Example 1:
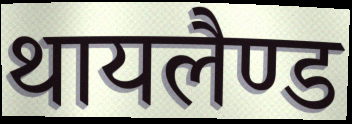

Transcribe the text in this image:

थायलैण्ड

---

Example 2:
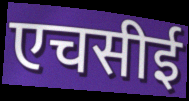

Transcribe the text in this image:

एचसीई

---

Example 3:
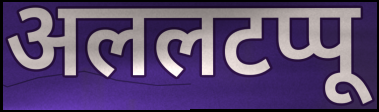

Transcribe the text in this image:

अललटप्पू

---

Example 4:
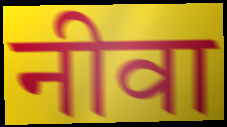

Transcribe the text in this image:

नीवा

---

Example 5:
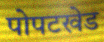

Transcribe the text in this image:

पोपटखेड